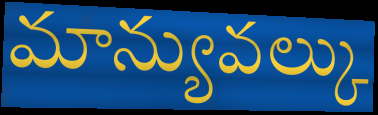
మాన్యువల్కు